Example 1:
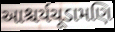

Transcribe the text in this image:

આશ્ચર્યચૂડામણિ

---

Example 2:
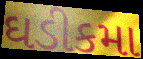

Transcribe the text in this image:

ઘડીકમા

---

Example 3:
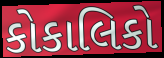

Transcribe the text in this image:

કોકાલિકો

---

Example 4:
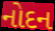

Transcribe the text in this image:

નોદન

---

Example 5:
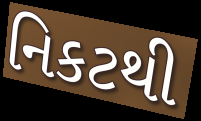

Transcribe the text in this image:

નિકટથી